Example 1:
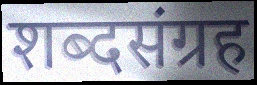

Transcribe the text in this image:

शब्दसंग्रह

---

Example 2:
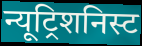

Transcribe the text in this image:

न्‍यूट्रिशनिस्‍ट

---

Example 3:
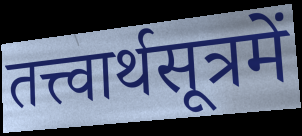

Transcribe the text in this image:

तत्त्वार्थसूत्रमें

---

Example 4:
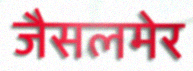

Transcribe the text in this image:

जैसलमेर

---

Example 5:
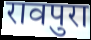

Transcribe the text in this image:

रावपुरा